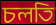
চলতি